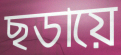
ছডায়ে